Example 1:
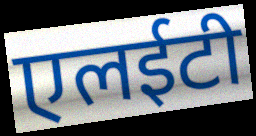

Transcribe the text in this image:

एलईटी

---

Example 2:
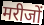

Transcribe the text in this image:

मरीजों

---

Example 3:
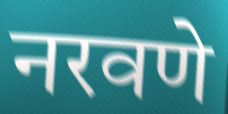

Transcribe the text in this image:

नरवणे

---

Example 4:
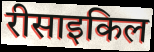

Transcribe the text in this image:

रीसाइकिल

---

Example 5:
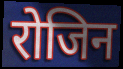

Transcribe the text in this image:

रोजिन